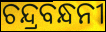
ଚନ୍ଦ୍ରବନ୍ଧନୀ